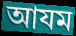
আযম